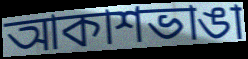
আকাশভাঙা